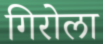
गिरोला